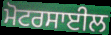
ਮੋਟਰਸਾਈਲ